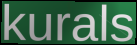
kurals